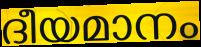
ദീയമാനം